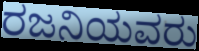
ರಜನಿಯವರು